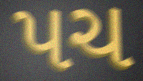
પચ